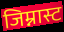
जिम्नास्ट